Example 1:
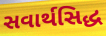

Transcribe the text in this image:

સવાર્થસિદ્ધ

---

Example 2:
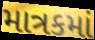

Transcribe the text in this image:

માત્રકમાં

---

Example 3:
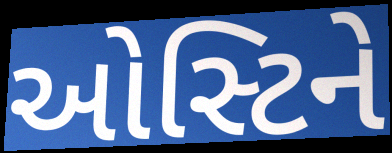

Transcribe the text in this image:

ઓસ્ટિને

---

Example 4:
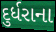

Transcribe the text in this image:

દુર્ધરાના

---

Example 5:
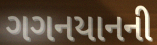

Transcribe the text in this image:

ગગનયાનની